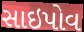
સાઇપોવ